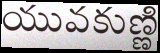
యువకుణ్ణి